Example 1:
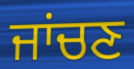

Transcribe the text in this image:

ਜਾਂਚਣ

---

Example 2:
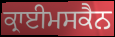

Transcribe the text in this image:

ਕ੍ਰਾਈਮਸਕੈਨ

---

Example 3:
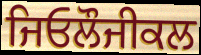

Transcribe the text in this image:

ਜਿਓਲੌਜੀਕਲ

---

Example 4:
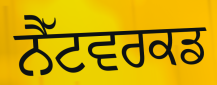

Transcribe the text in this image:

ਨੈੱਟਵਰਕਡ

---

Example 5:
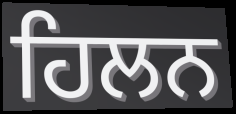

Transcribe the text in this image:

ਹਿਲਨ